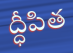
ద్ధీపిత